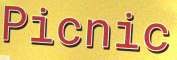
Picnic